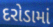
દરોડામાં